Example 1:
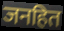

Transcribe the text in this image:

जनहित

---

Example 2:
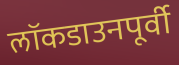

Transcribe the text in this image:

लॉकडाउनपूर्वी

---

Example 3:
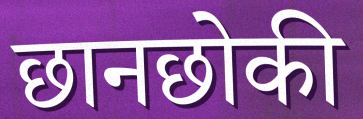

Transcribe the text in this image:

छानछोकी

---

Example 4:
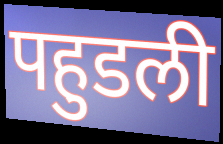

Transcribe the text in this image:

पहुडली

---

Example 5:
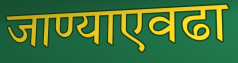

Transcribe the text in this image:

जाण्याएवढा